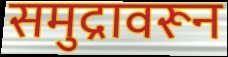
समुद्रावरून